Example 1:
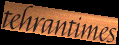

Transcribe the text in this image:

tehrantimes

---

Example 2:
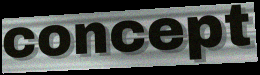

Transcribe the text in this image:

concept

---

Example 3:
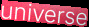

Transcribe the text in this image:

universe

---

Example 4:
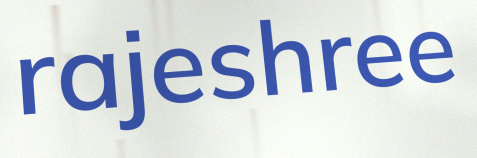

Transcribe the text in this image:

rajeshree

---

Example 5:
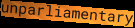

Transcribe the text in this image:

unparliamentary